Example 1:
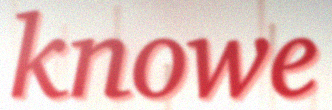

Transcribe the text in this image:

knowe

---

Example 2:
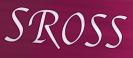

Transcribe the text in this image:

SROSS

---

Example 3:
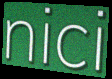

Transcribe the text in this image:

nici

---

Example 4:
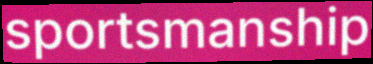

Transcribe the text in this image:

sportsmanship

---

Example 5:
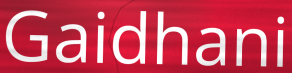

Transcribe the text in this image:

Gaidhani